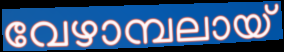
വേഴാമ്പലായ്